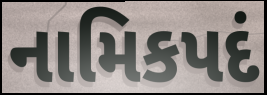
નામિકપદં